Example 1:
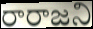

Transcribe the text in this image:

రారాజని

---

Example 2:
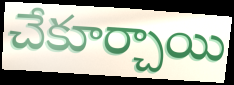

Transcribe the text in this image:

చేకూర్చాయి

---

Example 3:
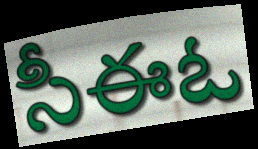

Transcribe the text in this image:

సీఈఓ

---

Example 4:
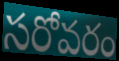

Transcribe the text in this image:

సరోవరం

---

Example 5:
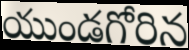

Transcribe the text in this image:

యుండగోరిన